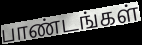
பாண்டங்கள்